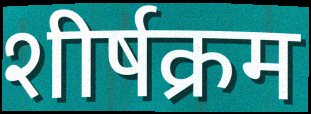
शीर्षक्रम